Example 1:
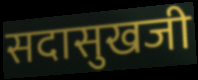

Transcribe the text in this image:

सदासुखजी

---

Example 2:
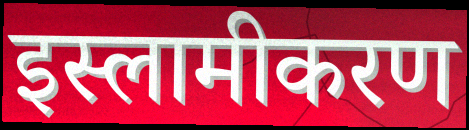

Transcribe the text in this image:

इस्लामीकरण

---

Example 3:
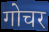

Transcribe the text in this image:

गोचर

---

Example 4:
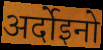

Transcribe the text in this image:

अर्दोइनो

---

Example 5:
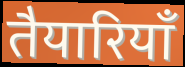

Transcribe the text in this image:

तैयारियॉं